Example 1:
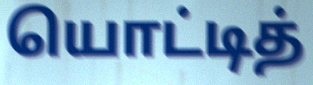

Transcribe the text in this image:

யொட்டித்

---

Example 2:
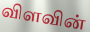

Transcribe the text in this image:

விளவின்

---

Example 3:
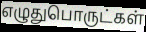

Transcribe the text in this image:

எழுதுபொருட்கள்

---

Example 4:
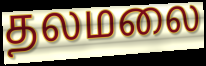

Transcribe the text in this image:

தலமலை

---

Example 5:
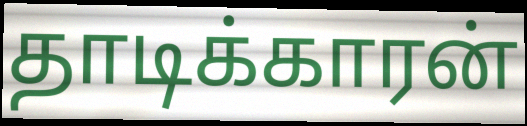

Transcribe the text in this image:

தாடிக்காரன்